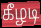
கீழடி